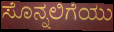
ಸೊನ್ನಲಿಗೆಯು